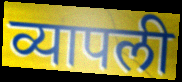
व्यापली